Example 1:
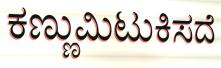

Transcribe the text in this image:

ಕಣ್ಣುಮಿಟುಕಿಸದೆ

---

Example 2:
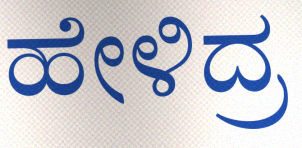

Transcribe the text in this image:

ಹೇಳಿದ್ರ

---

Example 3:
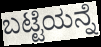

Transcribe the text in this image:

ಬಟ್ಟೆಯನ್ನೆ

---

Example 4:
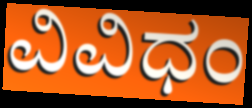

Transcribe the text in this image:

ವಿವಿಧಂ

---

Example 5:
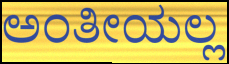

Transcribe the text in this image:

ಅಂತೀಯಲ್ಲ